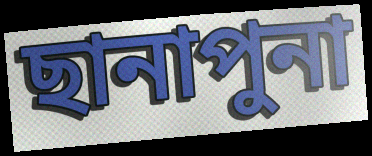
ছানাপুনা